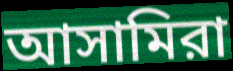
আসামিরা